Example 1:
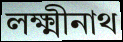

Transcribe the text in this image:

লক্ষ্মীনাথ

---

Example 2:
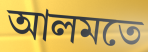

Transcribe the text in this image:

আলমতে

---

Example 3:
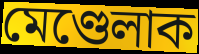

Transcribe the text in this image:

মেণ্ডেলাক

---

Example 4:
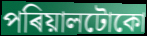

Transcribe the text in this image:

পৰিয়ালটোকো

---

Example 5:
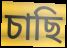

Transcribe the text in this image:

চাছি